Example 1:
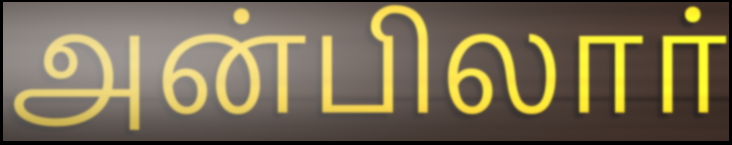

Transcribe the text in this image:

அன்பிலார்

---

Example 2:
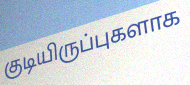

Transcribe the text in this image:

குடியிருப்புகளாக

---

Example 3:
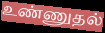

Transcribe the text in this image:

உண்ணுதல்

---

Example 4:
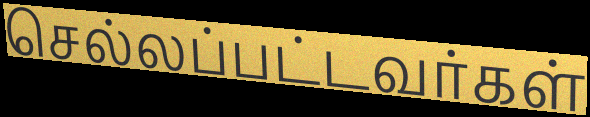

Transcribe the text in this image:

செல்லப்பட்டவர்கள்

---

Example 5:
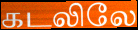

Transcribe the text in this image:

கடலிலே